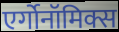
एर्गोनॉमिक्स